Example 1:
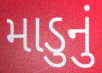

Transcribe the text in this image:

માડુનું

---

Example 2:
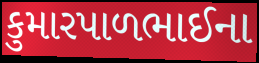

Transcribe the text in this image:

કુમારપાળભાઈના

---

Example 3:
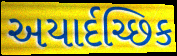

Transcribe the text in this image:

અયાર્દચ્છિક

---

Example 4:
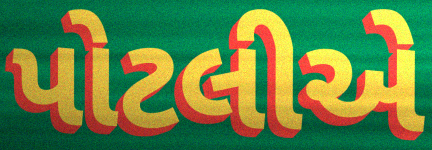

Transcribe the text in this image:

પોટલીએ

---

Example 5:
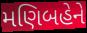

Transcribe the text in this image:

મણિબહેને